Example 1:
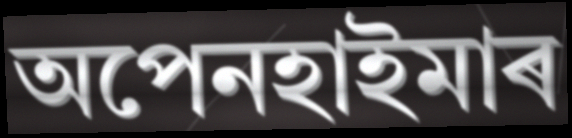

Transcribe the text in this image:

অপেনহাইমাৰ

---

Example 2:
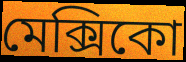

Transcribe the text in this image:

মেক্সিকো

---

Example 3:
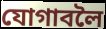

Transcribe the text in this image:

যোগাবলৈ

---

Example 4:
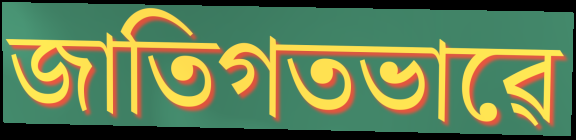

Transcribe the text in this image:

জাতিগতভাৱে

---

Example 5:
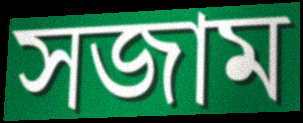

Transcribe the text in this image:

সজাম